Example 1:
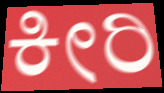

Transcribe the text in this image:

ಕೀರಿ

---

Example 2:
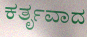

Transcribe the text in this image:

ಕರ್ತೃವಾದ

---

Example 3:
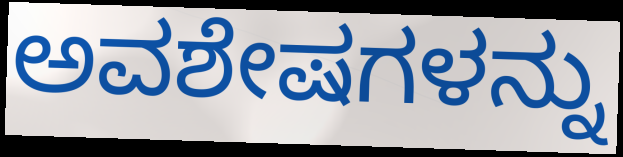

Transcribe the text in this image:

ಅವಶೇಷಗಳನ್ನು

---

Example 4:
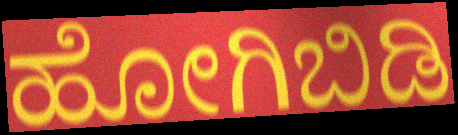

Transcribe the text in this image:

ಹೋಗಿಬಿಡಿ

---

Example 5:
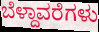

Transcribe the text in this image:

ಬೆಳ್ದಾವರೆಗಳು